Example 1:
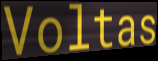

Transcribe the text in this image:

Voltas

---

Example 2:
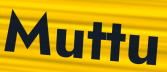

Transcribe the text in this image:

Muttu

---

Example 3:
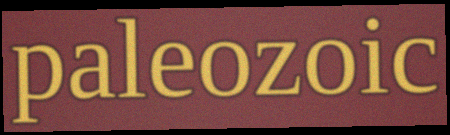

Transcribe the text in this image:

paleozoic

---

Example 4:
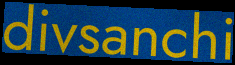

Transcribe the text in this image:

divsanchi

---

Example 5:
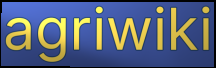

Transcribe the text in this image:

agriwiki